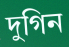
দুগিন